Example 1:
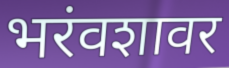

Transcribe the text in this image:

भरंवशावर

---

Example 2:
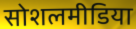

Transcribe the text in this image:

सोशलमीडिया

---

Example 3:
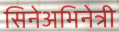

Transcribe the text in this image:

सिनेअभिनेत्री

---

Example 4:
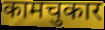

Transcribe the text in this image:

कामचुकार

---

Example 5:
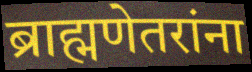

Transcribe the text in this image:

ब्राह्मणेतरांना